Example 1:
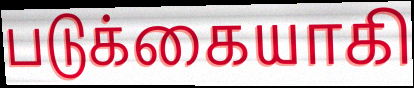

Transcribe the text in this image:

படுக்கையாகி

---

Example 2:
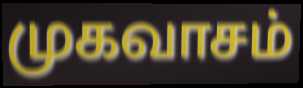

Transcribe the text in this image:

முகவாசம்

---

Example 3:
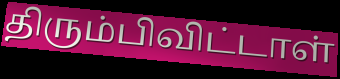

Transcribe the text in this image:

திரும்பிவிட்டாள்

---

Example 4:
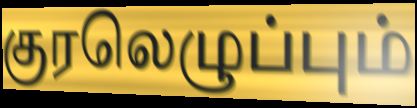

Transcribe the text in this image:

குரலெழுப்பும்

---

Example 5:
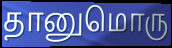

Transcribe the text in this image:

தானுமொரு